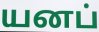
யனப்